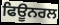
ਫਿਊਨਰਲ